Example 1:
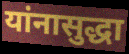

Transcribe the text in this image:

यांनासुद्धा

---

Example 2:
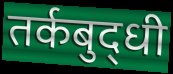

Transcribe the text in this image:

तर्कबुद्धी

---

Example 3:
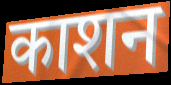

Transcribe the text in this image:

काशन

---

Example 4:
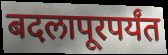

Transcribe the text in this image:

बदलापूरपर्यंत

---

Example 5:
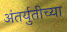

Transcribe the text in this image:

अंतर्युतीच्या